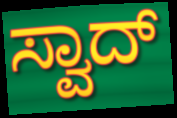
ಸ್ವಾದ್